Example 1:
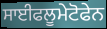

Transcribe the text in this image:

ਸਾਈਫਲੂਮੇਟੋਫੇਨ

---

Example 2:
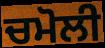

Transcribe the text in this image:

ਚਮੋਲੀ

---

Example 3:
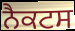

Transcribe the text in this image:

ਨੈਕਟਸ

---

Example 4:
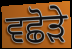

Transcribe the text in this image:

ਵਛੋੜੇ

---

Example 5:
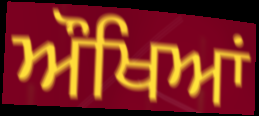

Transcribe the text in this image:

ਔਖਿਆਂ